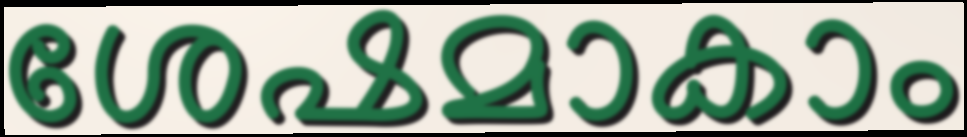
ശേഷമാകാം